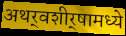
अथर्वशीर्षामध्ये